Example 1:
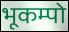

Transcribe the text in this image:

भूकम्पो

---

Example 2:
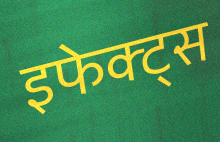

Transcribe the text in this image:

इफेक्‍ट्स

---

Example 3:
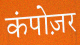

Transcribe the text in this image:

कंपोज़र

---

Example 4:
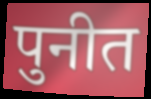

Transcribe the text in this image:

पुनीत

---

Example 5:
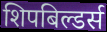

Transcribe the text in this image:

शिपबिल्डर्स